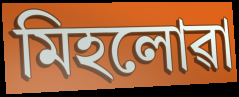
মিহলোৱা